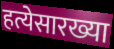
हत्येसारख्या